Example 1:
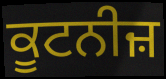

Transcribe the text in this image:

ਕੂਟਨੀਜ਼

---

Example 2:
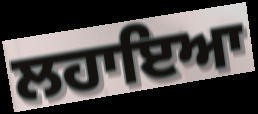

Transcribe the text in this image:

ਲਹਾਇਆ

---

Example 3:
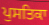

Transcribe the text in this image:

ਪੁਸਤਿਕਾ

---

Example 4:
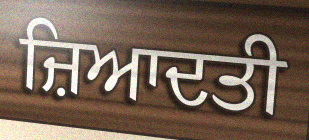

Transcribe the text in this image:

ਜ਼ਿਆਦਤੀ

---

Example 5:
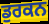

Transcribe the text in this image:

ਡੁਰਕਨ